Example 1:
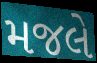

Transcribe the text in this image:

મજલે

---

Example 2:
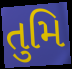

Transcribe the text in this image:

તુમિ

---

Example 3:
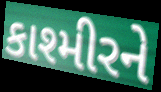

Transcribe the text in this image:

કાશ્મીરને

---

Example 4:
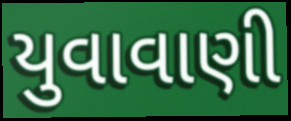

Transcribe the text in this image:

યુવાવાણી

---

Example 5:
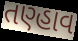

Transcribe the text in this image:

તણ્હાવ